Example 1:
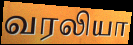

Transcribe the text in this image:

வரலியா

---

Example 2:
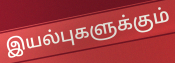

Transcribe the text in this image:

இயல்புகளுக்கும்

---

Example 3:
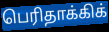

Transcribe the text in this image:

பெரிதாக்கிக்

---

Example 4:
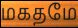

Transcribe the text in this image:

மகதமே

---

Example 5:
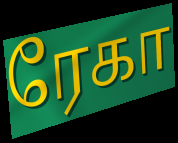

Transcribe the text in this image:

ரேகா